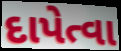
દાપેત્વા